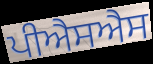
ਪੀਐਸਐਸ